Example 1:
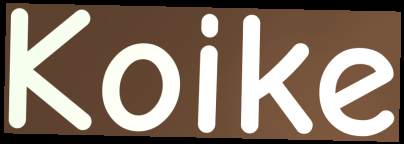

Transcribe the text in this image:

Koike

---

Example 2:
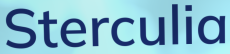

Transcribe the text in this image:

Sterculia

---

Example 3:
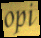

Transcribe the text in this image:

opi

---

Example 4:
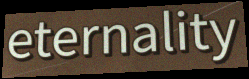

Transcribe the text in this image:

eternality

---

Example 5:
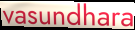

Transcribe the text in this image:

vasundhara